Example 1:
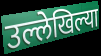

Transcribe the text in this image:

उल्लेखिल्या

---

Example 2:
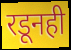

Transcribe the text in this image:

रडूनही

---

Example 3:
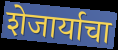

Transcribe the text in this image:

शेजार्याचा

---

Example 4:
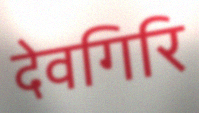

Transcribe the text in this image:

देवगिरि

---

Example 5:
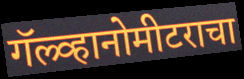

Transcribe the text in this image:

गॅल्व्हानोमीटराचा